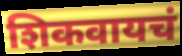
शिकवायचं